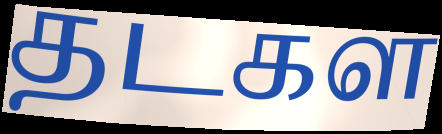
தடகள